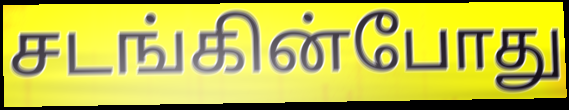
சடங்கின்போது